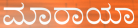
ಮಾರಾಯಾ